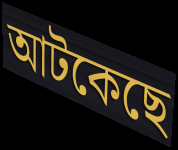
আটকেছে